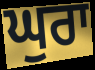
ਘੁਰਾ